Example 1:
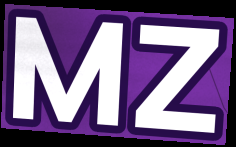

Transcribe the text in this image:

MZ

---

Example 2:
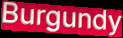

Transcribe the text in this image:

Burgundy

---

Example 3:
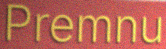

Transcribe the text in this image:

Premnu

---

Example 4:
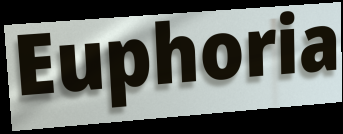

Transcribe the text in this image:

Euphoria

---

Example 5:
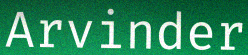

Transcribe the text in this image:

Arvinder